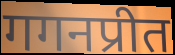
गगनप्रीत